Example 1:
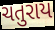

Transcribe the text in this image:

ચતુરાય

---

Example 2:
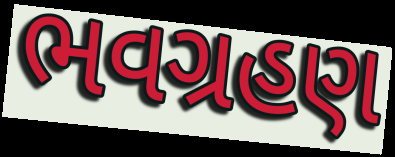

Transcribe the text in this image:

ભવગ્રહણ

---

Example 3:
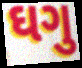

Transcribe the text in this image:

ઘગુ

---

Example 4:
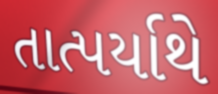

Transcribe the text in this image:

તાત્પર્યાથે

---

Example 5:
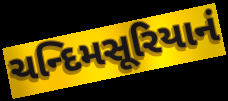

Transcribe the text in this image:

ચન્દિમસૂરિયાનં